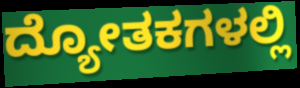
ದ್ಯೋತಕಗಳಲ್ಲಿ